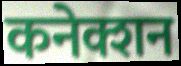
कनेक्‍शन